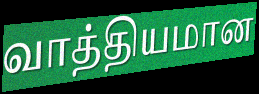
வாத்தியமான